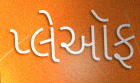
પ્લેઑફ